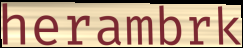
herambrk